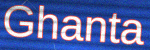
Ghanta